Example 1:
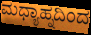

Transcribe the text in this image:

ಮಧ್ಯಾಹ್ನದಿಂದ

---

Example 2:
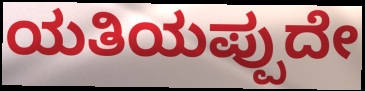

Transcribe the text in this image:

ಯತಿಯಪ್ಪುದೇ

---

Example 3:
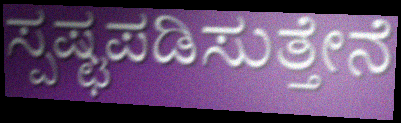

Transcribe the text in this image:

ಸ್ಪಷ್ಟಪಡಿಸುತ್ತೇನೆ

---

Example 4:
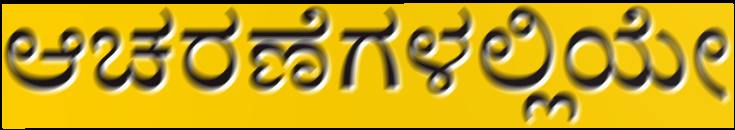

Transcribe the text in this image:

ಆಚರಣೆಗಳಲ್ಲಿಯೇ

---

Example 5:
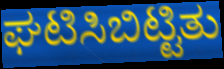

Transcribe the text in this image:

ಘಟಿಸಿಬಿಟ್ಟಿತು